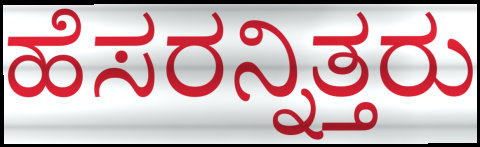
ಹೆಸರನ್ನಿತ್ತರು